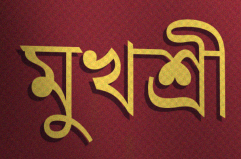
মুখশ্রী